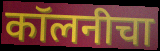
कॉलनीचा